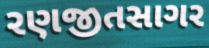
રણજીતસાગર